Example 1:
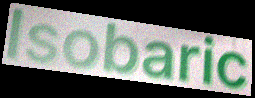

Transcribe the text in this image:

Isobaric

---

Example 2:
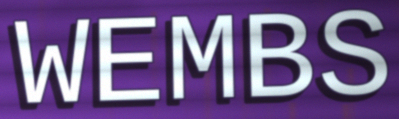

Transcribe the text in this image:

WEMBS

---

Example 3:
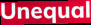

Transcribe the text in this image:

Unequal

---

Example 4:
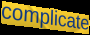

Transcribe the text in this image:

complicate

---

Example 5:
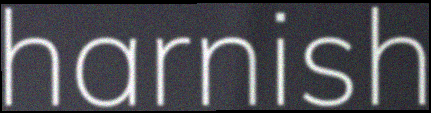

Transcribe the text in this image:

harnish